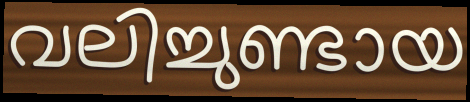
വലിച്ചുണ്ടായ